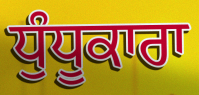
ਧੁੰਧੂਕਾਰਾ